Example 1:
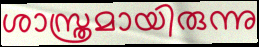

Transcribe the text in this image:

ശാസ്ത്രമായിരുന്നു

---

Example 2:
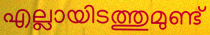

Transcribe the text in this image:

എല്ലായിടത്തുമുണ്ട്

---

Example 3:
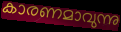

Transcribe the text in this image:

കാരണമാവുന്നു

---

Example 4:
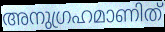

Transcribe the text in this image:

അനുഗ്രഹമാണിത്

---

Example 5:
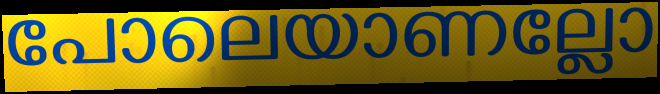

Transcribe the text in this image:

പോലെയാണല്ലോ